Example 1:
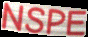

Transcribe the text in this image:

NSPE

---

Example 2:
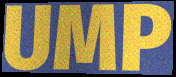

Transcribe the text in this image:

UMP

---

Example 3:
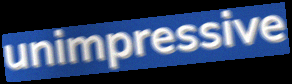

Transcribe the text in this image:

unimpressive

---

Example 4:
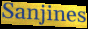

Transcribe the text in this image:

Sanjines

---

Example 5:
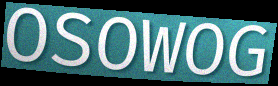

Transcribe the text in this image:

OSOWOG